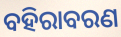
ବହିରାବରଣ